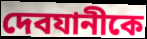
দেবযানীকে